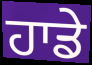
ਹਾਡੇ